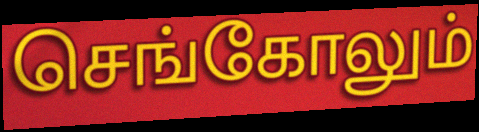
செங்கோலும்